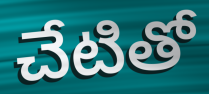
చేటితో